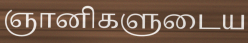
ஞானிகளுடைய